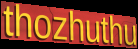
thozhuthu